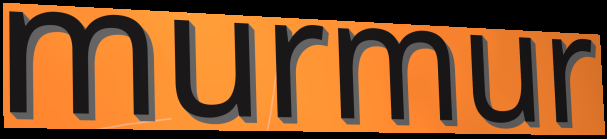
murmur